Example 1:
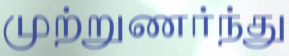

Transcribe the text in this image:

முற்றுணர்ந்து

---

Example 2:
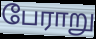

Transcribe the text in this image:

பேராறு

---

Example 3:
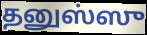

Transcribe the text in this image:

தனுஸ்ஸு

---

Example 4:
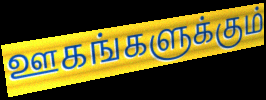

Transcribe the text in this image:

ஊகங்களுக்கும்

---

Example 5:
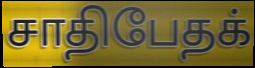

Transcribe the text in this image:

சாதிபேதக்